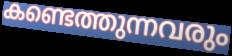
കണ്ടെത്തുന്നവരും